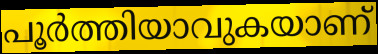
പൂർത്തിയാവുകയാണ്